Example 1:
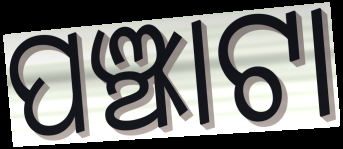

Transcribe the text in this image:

ପଞ୍ଝାଟା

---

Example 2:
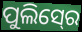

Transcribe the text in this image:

ପୁଲିସ୍‍ରେ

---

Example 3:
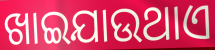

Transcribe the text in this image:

ଖାଇଯାଉଥାଏ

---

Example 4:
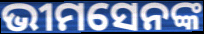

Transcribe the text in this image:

ଭୀମସେନଙ୍କ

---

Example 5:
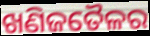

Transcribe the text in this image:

ଖଣିଜତୈଳର